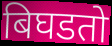
बिघडतो